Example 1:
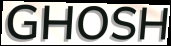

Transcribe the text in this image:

GHOSH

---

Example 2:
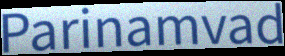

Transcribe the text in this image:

Parinamvad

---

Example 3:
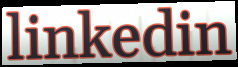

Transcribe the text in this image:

linkedin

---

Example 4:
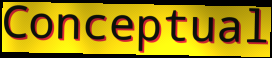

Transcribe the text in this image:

Conceptual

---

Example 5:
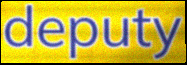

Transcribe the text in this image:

deputy